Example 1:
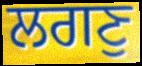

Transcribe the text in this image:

ਲਗਣੁ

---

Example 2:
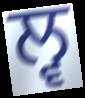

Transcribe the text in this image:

ਲ੍ਵ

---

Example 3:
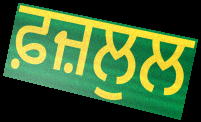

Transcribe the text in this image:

ਫ਼ਜ਼ਲੁਲ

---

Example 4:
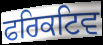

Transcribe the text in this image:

ਫਰਿਕਟਿਵ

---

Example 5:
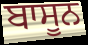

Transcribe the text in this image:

ਬਾਸੂਨ